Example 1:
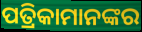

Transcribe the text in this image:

ପତ୍ରିକାମାନଙ୍କର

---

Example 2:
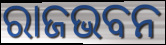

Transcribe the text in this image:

ରାଜଭବନ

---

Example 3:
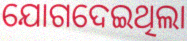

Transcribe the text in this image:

ଯୋଗଦେଇଥିଲା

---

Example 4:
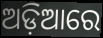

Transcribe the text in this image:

ଅଡ଼ିଆରେ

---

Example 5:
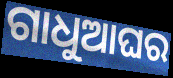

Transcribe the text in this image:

ଗାଧୁଆଘର